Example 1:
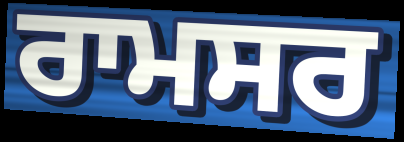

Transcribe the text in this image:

ਰਾਮਸਰ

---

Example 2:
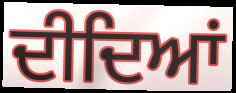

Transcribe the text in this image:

ਦੀਦਿਆਂ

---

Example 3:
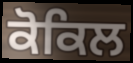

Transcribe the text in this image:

ਕੋਕਿਲ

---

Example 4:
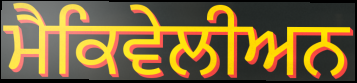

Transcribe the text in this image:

ਮੈਕਿਵੇਲੀਅਨ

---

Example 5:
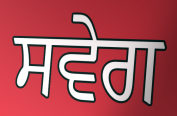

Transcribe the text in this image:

ਸਵੇਗ